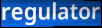
regulator